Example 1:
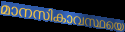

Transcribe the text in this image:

മാനസികാവസ്ഥയെ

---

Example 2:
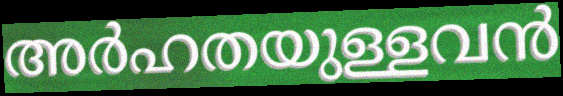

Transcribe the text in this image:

അർഹതയുള്ളവൻ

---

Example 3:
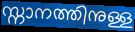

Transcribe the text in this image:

സ്നാനത്തിനുള്ള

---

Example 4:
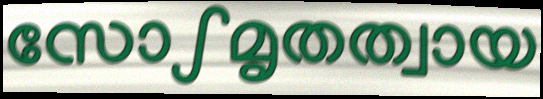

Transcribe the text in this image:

സോഽമൃതത്വായ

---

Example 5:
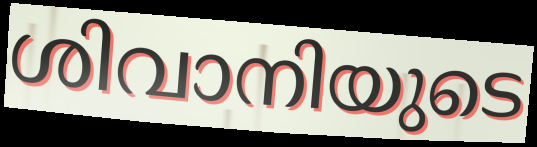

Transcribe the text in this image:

ശിവാനിയുടെ